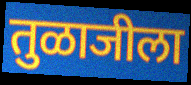
तुळाजीला